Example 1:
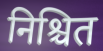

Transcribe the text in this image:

निश्चित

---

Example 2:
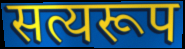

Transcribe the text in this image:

सत्यरूप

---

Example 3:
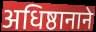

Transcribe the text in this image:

अधिष्ठानाने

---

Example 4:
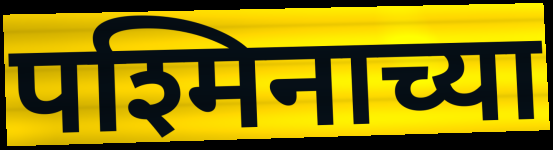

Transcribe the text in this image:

पश्मिनाच्या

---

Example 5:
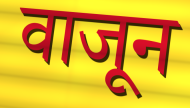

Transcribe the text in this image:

वाजून